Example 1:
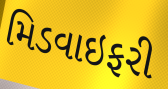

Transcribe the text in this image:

મિડવાઇફરી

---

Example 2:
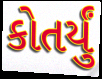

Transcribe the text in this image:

કોતર્યું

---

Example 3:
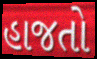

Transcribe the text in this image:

હાજતો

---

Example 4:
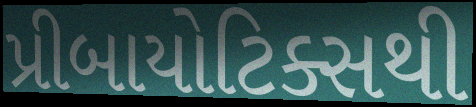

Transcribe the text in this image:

પ્રીબાયોટિક્સથી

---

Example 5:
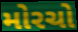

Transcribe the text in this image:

મોરચો